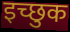
इच्‍छुक